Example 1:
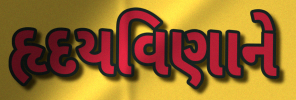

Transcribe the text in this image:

હૃદયવિણાને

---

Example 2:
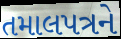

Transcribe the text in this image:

તમાલપત્રને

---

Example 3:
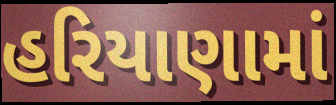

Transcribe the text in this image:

હરિયાણામાં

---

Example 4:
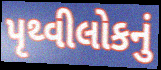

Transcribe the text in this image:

પૃથ્વીલોકનું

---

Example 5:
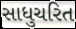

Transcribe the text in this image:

સાધુચરિત